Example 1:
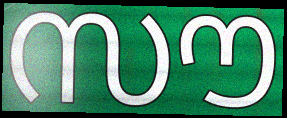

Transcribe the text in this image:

സൗ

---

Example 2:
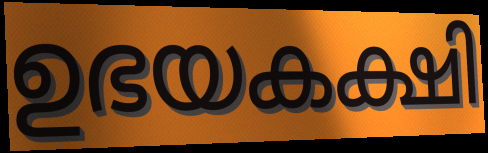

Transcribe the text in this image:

ഉഭയകക്ഷി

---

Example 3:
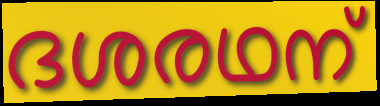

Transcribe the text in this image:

ദശരഥന്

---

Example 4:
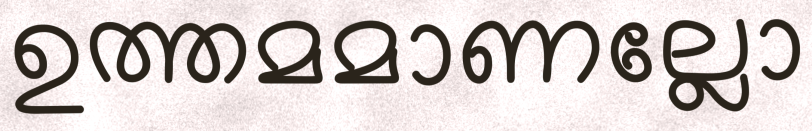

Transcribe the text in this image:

ഉത്തമമാണല്ലോ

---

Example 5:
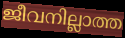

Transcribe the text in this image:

ജീവനില്ലാത്ത